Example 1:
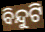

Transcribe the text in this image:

ବିନ୍ଦୁଟି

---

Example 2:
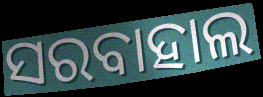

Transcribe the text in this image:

ସରବାହାଲ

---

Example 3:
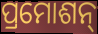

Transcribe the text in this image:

ପ୍ରମୋଶନ୍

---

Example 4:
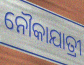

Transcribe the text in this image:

ନୌକାଯାତ୍ରୀ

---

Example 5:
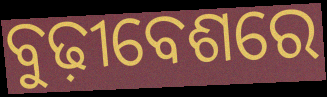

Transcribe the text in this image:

ବୁଢ଼ୀବେଶରେ